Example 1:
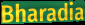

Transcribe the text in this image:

Bharadia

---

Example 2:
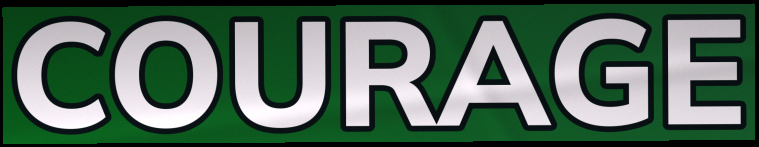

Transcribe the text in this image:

COURAGE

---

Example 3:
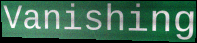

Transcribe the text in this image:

Vanishing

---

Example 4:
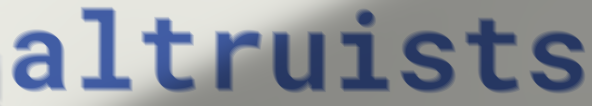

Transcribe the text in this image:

altruists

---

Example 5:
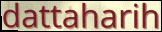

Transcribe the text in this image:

dattaharih